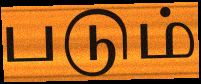
படும்